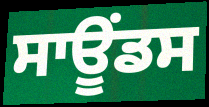
ਸਾਊਂਡਸ